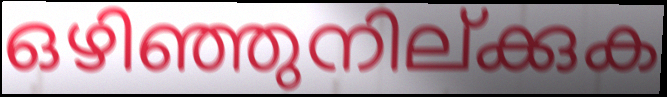
ഒഴിഞ്ഞുനില്ക്കുക